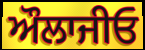
ਔਲਾਜੀਓ